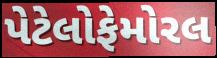
પેટેલોફેમોરલ